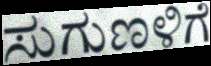
ಸುಗುಣಳಿಗೆ